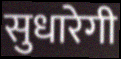
सुधारेगी